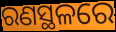
ରଣସ୍ଥଳରେ